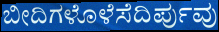
ಬೀದಿಗಳೊಳೆಸೆದಿರ್ಪುವು